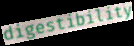
digestibility